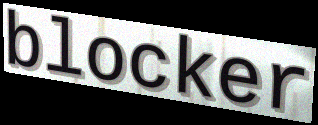
blocker